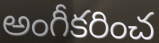
అంగీకరించ